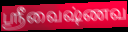
ஸ்ரீவைஷ்ணவ